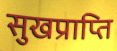
सुखप्राप्ति